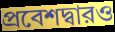
প্রবেশদ্বারও